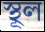
স্থূল